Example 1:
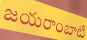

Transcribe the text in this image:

జయరాంబాటి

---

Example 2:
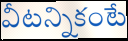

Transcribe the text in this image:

వీటన్నికంటే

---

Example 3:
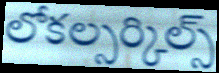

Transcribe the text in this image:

లోకల్సర్కిల్స్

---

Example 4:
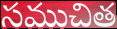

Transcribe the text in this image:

సముచిత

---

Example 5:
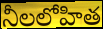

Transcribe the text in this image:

నీలలోహిత